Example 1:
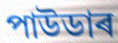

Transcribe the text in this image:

পাউডাৰ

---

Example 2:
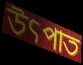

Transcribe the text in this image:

উৎপাত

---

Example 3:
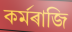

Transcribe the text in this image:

কৰ্মৰাজি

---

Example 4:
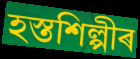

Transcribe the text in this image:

হস্তশিল্পীৰ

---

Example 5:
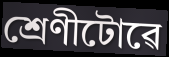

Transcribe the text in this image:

শ্ৰেণীটোৱে